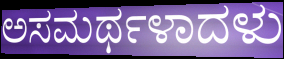
ಅಸಮರ್ಥಳಾದಳು